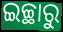
ଇଚ୍ଛାରୁ